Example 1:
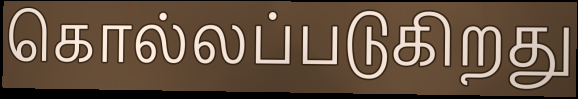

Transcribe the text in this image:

கொல்லப்படுகிறது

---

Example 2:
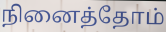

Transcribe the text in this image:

நினைத்தோம்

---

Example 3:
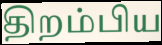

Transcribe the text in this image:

திறம்பிய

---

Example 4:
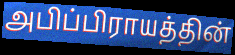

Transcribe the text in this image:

அபிப்பிராயத்தின்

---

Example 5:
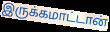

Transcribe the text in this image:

இருக்கமாட்டான்